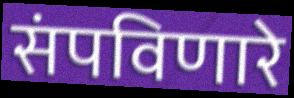
संपविणारे